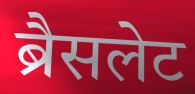
ब्रैसलेट